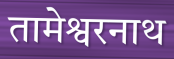
तामेश्वरनाथ